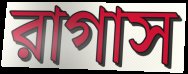
রাগাস